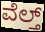
ವೆಲ್ತ್